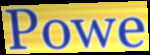
Powe